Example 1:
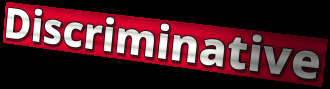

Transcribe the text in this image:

Discriminative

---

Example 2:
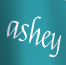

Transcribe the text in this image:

ashey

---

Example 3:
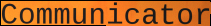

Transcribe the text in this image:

Communicator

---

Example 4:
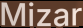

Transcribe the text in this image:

Mizar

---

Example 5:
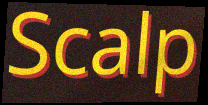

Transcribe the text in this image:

Scalp